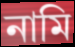
নামি